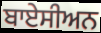
ਬਾਏਸੀਅਨ